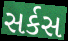
સર્કસ